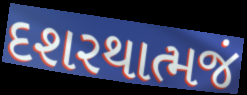
દશરથાત્મજં